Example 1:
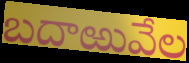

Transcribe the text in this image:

బదాఱువేల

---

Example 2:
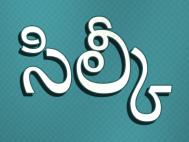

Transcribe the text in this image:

సిల్కీ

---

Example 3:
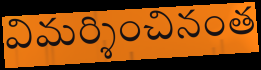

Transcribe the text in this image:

విమర్శించినంత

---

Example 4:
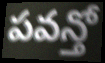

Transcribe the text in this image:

పవన్తో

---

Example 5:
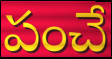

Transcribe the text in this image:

పంచే